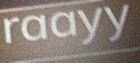
raayy